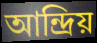
আন্দ্রিয়